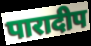
पारादीप